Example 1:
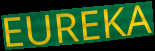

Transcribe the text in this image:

EUREKA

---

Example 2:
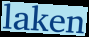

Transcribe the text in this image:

laken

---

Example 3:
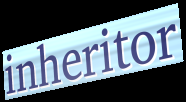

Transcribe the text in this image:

inheritor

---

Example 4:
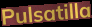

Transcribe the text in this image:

Pulsatilla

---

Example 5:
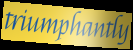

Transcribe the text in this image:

triumphantly